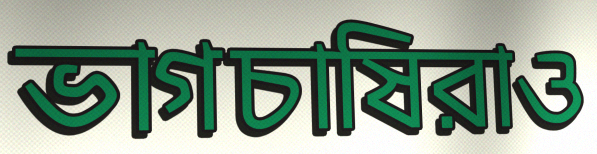
ভাগচাষিরাও